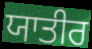
ਯਾਤੀਰ